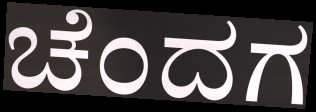
ಚೆಂದಗ